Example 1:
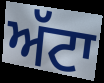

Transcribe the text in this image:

ਅੱਟਾ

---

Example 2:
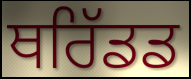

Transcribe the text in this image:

ਥਰਿੱਡਡ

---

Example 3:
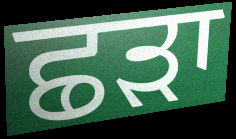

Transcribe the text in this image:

ਛਡ਼ਾ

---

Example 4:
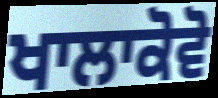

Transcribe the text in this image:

ਖਾਲਾਕੋਵੋ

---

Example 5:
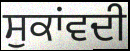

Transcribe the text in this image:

ਸੁਕਾਂਵਦੀ